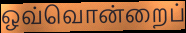
ஒவ்வொன்றைப்